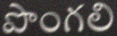
పొంగలి